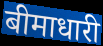
बीमाधारी